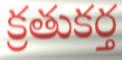
క్రతుకర్త